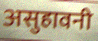
असुहावनी